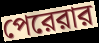
পেরেরার